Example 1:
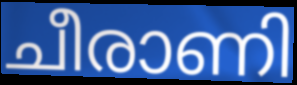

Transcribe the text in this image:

ചീരാണി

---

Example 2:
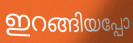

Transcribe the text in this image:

ഇറങ്ങിയപ്പോ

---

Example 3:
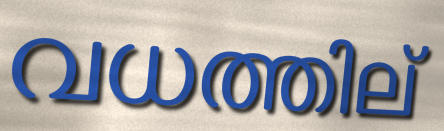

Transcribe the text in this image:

വധത്തില്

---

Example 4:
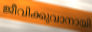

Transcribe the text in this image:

ജീവിക്കുവാനായി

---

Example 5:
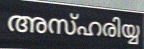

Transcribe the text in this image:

അസ്ഹരിയ്യ